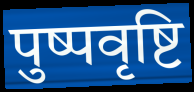
पुष्पवृष्टि